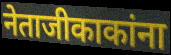
नेताजीकाकांना